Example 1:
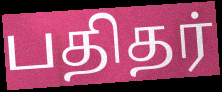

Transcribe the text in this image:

பதிதர்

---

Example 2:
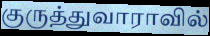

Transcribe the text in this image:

குருத்துவாராவில்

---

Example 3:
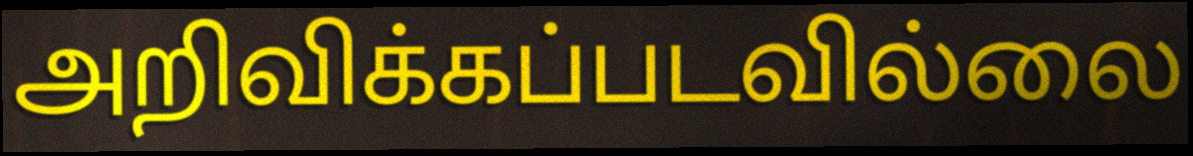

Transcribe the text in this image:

அறிவிக்கப்படவில்லை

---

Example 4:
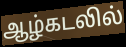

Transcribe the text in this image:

ஆழ்கடலில்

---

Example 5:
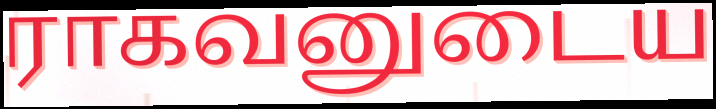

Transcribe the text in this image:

ராகவனுடைய